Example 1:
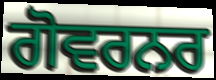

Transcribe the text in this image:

ਗੋਵਰਨਰ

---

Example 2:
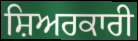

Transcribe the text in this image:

ਸ਼ਿਅਰਕਾਰੀ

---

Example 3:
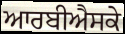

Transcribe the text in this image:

ਆਰਬੀਐਸਕੇ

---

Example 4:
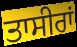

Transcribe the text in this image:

ਤਾਸੀਰਾਂ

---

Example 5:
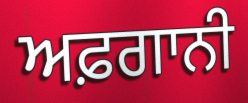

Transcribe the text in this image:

ਅਫ਼ਗਾਨੀ